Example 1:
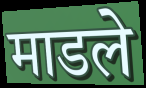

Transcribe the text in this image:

माडले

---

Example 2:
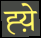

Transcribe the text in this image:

ह्य़े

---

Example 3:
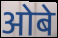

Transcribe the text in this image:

ओबे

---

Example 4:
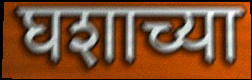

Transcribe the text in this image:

घशाच्या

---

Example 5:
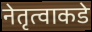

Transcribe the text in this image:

नेतृत्वाकडे